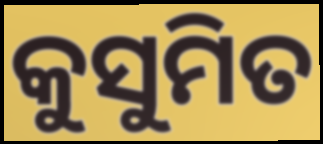
କୁସୁମିତ